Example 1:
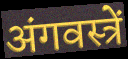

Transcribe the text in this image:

अंगवस्त्रें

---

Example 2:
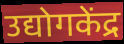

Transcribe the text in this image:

उद्योगकेंद्र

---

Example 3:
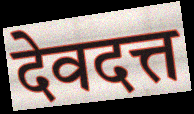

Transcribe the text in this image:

देवदत्त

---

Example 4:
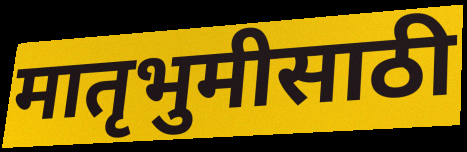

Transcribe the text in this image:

मातृभुमीसाठी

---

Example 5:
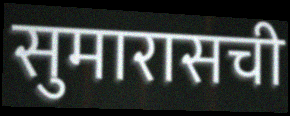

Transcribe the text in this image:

सुमारासची